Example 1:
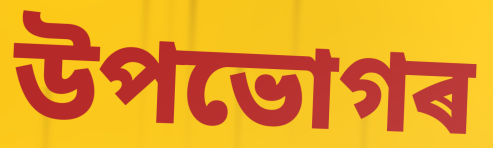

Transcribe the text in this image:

উপভোগৰ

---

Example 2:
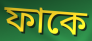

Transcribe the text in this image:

ফাকে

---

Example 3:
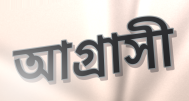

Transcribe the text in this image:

আগ্ৰাসী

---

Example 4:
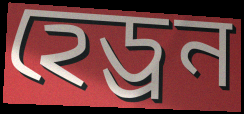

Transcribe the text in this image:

হেড্ৰন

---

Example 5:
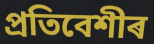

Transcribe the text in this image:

প্ৰতিবেশীৰ